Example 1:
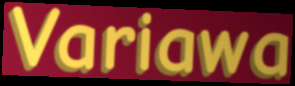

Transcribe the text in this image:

Variawa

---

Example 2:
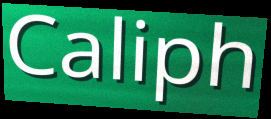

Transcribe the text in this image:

Caliph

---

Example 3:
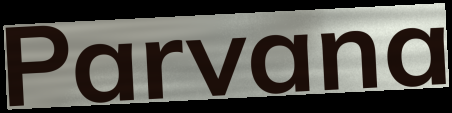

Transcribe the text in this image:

Parvana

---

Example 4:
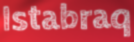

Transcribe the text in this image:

Istabraq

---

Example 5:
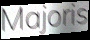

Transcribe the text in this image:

Majoris